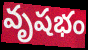
వృషభం